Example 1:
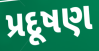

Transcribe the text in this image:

પ્રદૂષણ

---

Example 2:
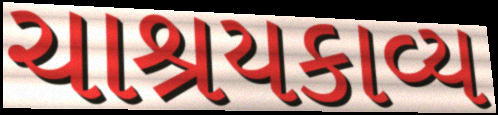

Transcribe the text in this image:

ચાશ્રયકાવ્ય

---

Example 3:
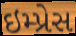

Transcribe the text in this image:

ઇમ્પ્રેસ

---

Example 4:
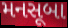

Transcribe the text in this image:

મનસૂબા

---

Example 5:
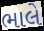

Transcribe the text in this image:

ભાલે